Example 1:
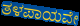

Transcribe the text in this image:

ತಳಪಾಯವೇ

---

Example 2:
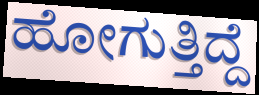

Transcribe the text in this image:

ಹೋಗುತ್ತಿದ್ದೆ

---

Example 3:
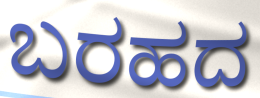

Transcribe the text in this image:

ಬರಹದ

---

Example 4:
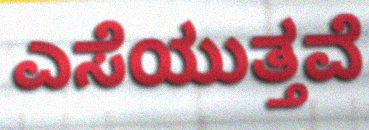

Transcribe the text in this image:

ಎಸೆಯುತ್ತವೆ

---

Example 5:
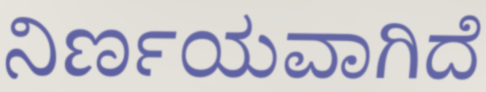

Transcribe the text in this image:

ನಿರ್ಣಯವಾಗಿದೆ